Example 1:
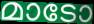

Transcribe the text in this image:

മാടോ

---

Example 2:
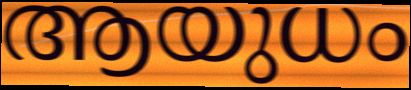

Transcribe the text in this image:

ആയുധം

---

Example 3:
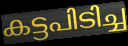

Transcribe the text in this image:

കട്ടപിടിച്ച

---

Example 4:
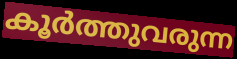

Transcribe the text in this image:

കൂർത്തുവരുന്ന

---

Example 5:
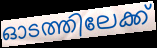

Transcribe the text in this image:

ഓടത്തിലേക്ക്